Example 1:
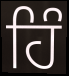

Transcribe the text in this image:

ਹਿੰ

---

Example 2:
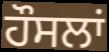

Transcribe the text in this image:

ਹੌਸਲਾਂ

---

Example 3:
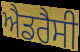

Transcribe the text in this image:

ਐਡਰੈਸੀ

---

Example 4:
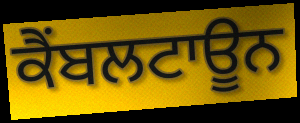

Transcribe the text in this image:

ਕੈਂਬਲਟਾਊਨ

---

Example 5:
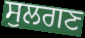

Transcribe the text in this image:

ਸੁਲਗਣ